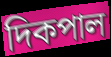
দিকপাল